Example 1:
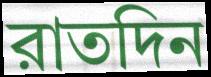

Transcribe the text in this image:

রাতদিন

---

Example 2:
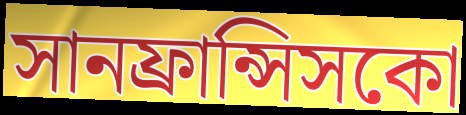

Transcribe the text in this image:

সানফ্রান্সিসকো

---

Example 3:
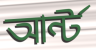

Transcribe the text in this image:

আর্ন্ট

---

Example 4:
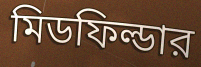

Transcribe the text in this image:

মিডফিল্ডার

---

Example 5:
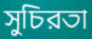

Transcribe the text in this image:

সুচিরতা